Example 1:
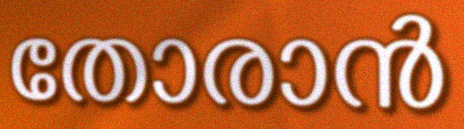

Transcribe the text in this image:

തോരാൻ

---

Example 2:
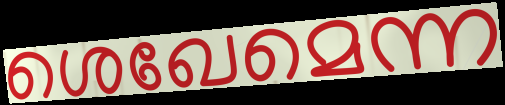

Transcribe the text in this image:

ശെഖേമെന്ന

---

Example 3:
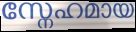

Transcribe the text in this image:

സ്നേഹമായ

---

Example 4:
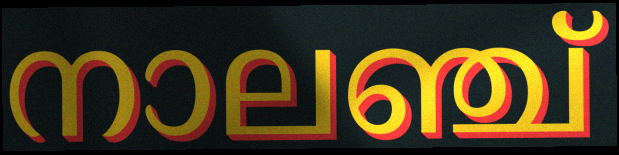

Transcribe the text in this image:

നാലഞ്ച്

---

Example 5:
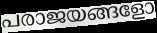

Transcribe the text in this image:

പരാജയങ്ങളോ